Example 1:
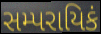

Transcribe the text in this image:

સમ્પરાયિકં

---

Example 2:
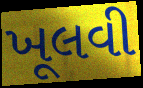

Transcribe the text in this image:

ખૂલવી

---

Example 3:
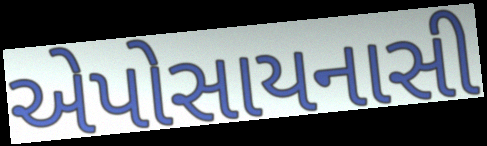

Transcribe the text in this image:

એપોસાયનાસી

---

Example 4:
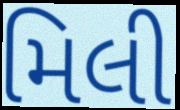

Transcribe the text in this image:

મિલી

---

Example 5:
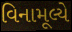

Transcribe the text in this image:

વિનામૂલ્યે